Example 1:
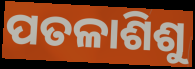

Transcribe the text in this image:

ପତଳାଶିଶୁ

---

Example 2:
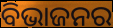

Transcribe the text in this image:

ବିଭାଜନର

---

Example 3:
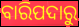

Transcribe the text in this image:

ବାରିପଦାରୁ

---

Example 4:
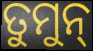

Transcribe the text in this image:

ତୁମୁନ୍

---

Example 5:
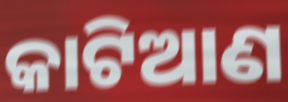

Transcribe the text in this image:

କାଟିଆଣ